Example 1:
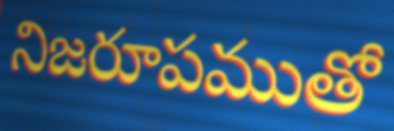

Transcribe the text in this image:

నిజరూపముతో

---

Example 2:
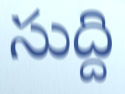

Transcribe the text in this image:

సుద్ది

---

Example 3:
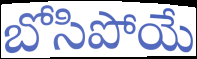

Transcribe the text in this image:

బోసిపోయే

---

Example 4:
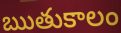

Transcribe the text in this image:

ఋతుకాలం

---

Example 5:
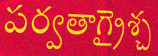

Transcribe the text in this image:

పర్వతాగ్రైశ్చ